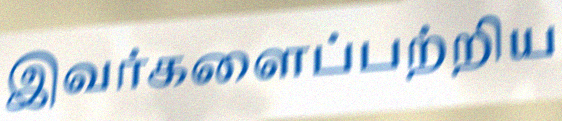
இவர்களைப்பற்றிய